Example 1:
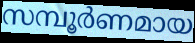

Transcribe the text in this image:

സമ്പൂർണമായ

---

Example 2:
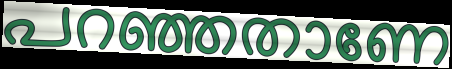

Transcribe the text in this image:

പറഞ്ഞതാണേ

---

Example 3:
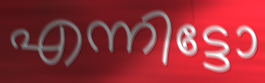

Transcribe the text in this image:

എന്നിട്ടോ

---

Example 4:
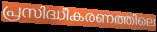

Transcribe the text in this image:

പ്രസിദ്ധീകരണത്തിലെ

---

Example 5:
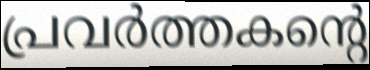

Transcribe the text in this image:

പ്രവർത്തകന്റെ